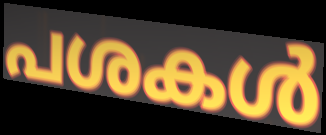
പശകൾ